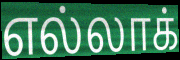
எல்லாக்